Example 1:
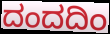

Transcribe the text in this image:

ದಂದದಿಂ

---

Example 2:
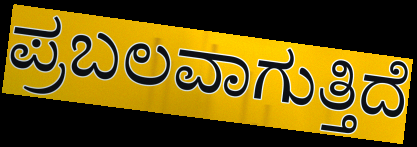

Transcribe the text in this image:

ಪ್ರಬಲವಾಗುತ್ತಿದೆ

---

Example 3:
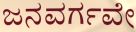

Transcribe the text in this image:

ಜನವರ್ಗವೇ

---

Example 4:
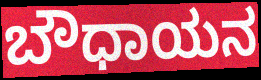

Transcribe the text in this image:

ಬೌಧಾಯನ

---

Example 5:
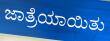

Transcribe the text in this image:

ಜಾತ್ರೆಯಾಯಿತು